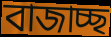
বাজাচ্ছ